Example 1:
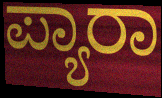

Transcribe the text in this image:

ಪ್ಯಾರಾ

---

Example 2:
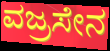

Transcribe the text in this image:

ವಜ್ರಸೇನ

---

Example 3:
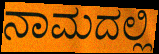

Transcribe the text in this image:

ನಾಮದಲ್ಲಿ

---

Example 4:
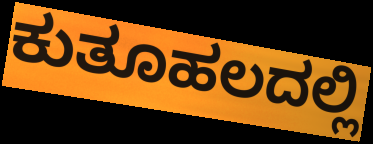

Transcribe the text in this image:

ಕುತೂಹಲದಲ್ಲಿ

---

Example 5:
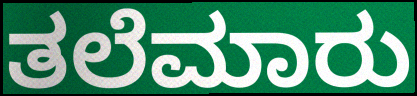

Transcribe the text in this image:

ತಲೆಮಾರು